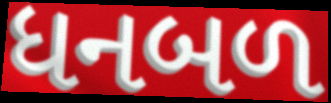
ધનબળ